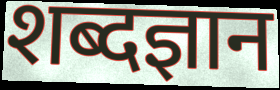
शब्दज्ञान